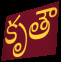
కృతౌ